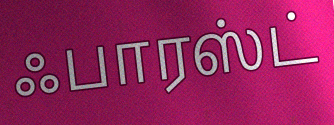
ஃபாரஸ்ட்